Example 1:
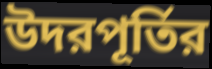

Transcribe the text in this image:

উদরপূর্তির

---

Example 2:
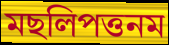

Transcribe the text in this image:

মছলিপত্তনম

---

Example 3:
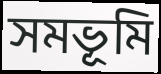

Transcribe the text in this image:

সমভূমি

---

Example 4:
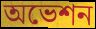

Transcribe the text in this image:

অভেশন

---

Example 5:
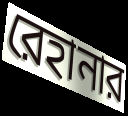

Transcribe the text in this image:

রেহানার